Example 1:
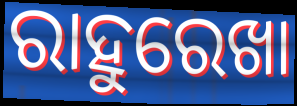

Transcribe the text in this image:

ରାହୁରେଖା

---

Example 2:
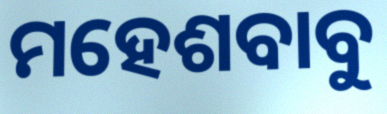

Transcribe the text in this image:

ମହେଶବାବୁ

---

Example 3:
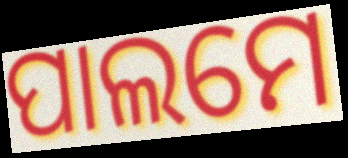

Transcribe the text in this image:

ପାଲମେ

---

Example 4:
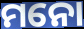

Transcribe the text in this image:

ମନୋ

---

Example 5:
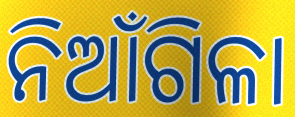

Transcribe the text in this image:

ନିଆଁଗିଳା